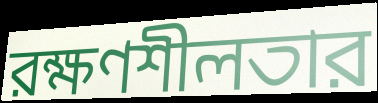
রক্ষণশীলতার